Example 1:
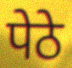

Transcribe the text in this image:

पेठे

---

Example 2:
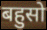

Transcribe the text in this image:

बहुसो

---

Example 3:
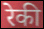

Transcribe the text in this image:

रेकी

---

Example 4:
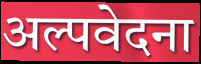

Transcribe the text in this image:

अल्पवेदना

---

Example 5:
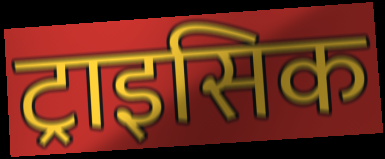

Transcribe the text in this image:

ट्राइसिक